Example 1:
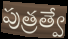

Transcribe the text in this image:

పుత్రత్వే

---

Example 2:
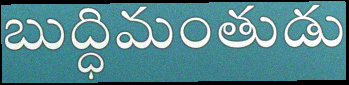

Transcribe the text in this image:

బుద్ధిమంతుడు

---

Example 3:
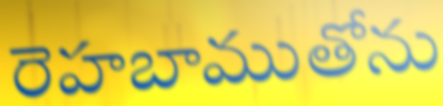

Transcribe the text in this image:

రెహబాముతోను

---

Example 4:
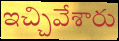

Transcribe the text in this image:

ఇచ్చివేశారు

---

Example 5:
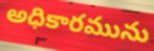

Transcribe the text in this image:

అధికారమును